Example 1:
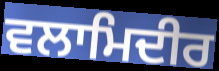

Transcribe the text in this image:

ਵਲਾਮਿਦੀਰ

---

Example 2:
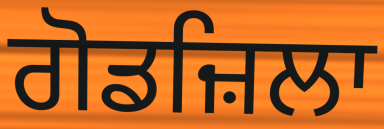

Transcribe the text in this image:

ਗੋਡਜ਼ਿਲਾ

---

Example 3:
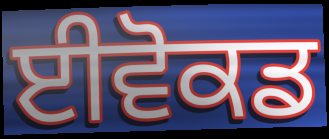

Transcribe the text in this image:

ਈਵੋਕਡ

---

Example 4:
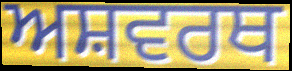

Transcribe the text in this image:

ਅਸ਼ਵਰਥ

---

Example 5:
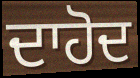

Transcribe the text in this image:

ਦਾਹੋਦ